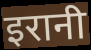
इरानी